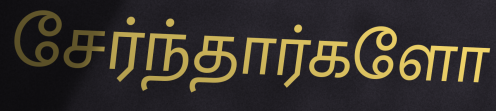
சேர்ந்தார்களோ